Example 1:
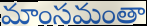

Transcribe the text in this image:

మాంసమంతా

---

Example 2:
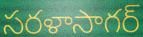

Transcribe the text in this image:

సరళాసాగర్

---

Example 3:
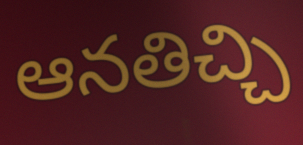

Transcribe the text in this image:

ఆనతిచ్చి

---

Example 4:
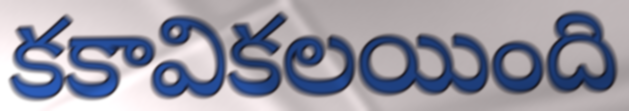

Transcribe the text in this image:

కకావికలయింది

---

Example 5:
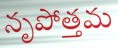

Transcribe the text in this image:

నృపోత్తమ